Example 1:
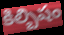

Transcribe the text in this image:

కిల్బిషం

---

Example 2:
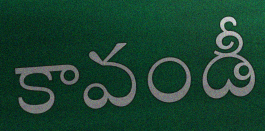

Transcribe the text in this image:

కావండీ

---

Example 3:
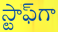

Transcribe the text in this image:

స్టాఫ్‌గా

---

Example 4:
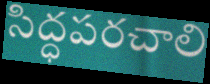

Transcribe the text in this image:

సిద్ధపరచాలి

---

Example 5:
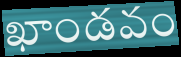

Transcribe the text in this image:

ఖాండవం